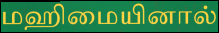
மஹிமையினால்